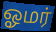
ஓமர்